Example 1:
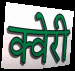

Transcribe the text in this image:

क्वेरी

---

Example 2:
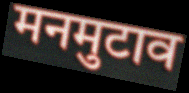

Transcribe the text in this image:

मनमुटाव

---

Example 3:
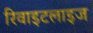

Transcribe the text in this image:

रिवाइटलाइज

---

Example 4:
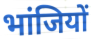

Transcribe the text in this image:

भांजियों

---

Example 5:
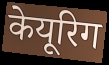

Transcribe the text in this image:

केयूरिग